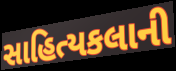
સાહિત્યકલાની